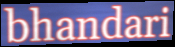
bhandari